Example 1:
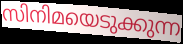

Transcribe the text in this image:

സിനിമയെടുക്കുന്ന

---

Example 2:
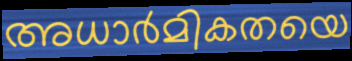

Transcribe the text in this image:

അധാർമികതയെ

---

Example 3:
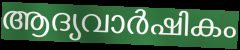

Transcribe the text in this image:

ആദ്യവാർഷികം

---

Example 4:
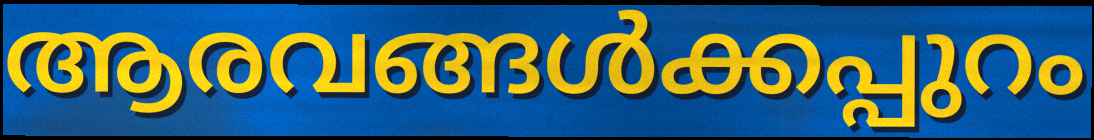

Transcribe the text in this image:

ആരവങ്ങൾക്കപ്പുറം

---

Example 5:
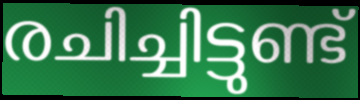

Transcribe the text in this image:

രചിച്ചിട്ടുണ്ട്